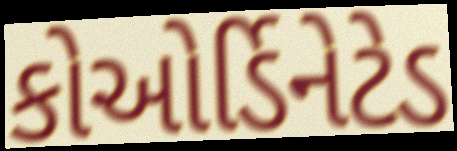
કોઓર્ડિનેટેડ